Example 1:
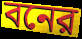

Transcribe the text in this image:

বনের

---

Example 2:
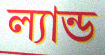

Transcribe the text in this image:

ল্যান্ড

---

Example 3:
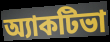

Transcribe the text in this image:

অ্যাকটিভা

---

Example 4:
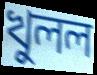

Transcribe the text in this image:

খুলল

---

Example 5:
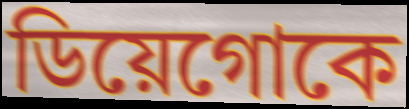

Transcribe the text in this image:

ডিয়েগোকে